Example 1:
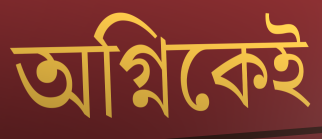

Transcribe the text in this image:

অগ্নিকেই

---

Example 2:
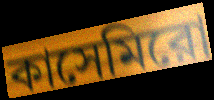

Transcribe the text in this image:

কাসেমিরো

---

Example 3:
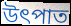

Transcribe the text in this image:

উৎপাত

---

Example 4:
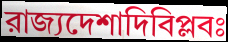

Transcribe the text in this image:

রাজ্যদেশাদিবিপ্লবঃ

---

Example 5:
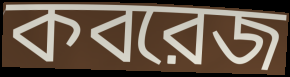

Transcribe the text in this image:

কবরেজ